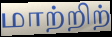
மாற்றிற்